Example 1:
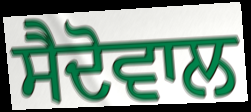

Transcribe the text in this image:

ਸੈਦੋਵਾਲ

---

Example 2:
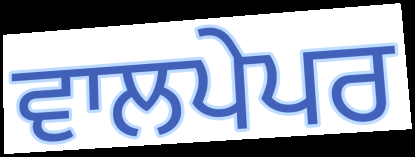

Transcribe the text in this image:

ਵਾਲਪੇਪਰ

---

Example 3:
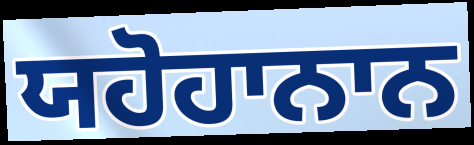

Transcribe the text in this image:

ਯਹੋਹਾਨਾਨ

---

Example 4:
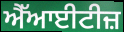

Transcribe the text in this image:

ਐੱਆਈਟੀਜ਼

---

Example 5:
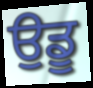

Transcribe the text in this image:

ਉਡੂ